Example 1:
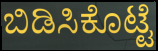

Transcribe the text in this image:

ಬಿಡಿಸಿಕೊಟ್ಟೆ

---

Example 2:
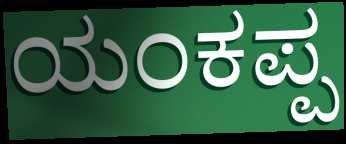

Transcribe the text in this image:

ಯಂಕಪ್ಪ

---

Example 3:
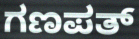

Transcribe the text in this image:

ಗಣಪತ್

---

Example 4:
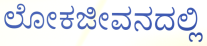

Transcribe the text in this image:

ಲೋಕಜೀವನದಲ್ಲಿ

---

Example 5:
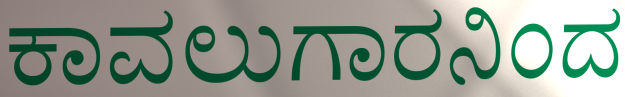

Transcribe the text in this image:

ಕಾವಲುಗಾರನಿಂದ